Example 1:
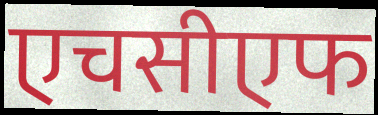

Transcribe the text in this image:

एचसीएफ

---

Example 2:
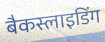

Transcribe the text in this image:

बैकस्लाइडिंग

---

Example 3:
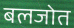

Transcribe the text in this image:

बलजोत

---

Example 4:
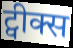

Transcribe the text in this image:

ट्वीक्स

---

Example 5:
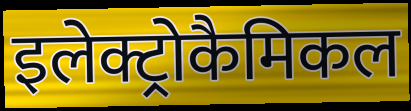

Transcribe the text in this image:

इलेक्ट्रोकैमिकल